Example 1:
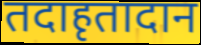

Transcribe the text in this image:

तदाहृतादान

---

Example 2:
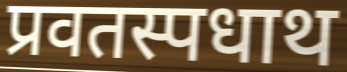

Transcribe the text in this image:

प्रवतस्पधाथ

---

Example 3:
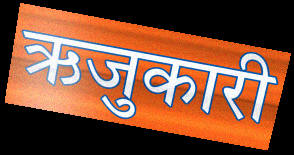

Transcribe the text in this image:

ऋजुकारी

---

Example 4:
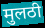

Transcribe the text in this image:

मुलठी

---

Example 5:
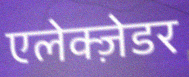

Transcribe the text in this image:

एलेक्ज़ेडर